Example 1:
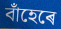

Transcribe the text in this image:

বাঁহেৰে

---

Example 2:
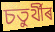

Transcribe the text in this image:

চতুৰ্থীৰ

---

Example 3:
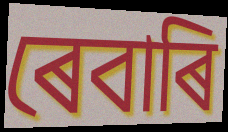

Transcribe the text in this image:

ৰেবাৰি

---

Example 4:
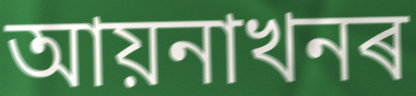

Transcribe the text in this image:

আয়নাখনৰ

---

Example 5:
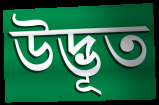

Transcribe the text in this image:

উদ্ভূত